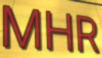
MHR